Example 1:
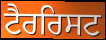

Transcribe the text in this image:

ਟੈਰਰਿਸਟ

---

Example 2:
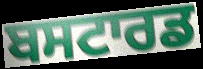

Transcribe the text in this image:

ਬਸਟਾਰਡ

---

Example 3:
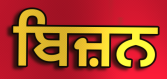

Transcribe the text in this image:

ਬਿਜ਼ਨ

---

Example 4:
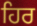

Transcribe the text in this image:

ਹਿਰ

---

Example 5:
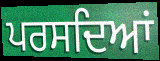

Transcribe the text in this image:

ਪਰਸਦਿਆਂ